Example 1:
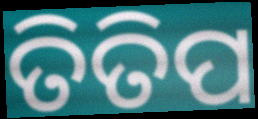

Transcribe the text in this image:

ତିତିପ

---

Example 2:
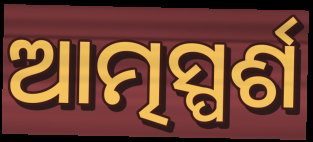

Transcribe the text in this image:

ଆତ୍ମସ୍ପର୍ଶ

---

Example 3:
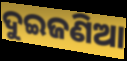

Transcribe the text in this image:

ଦୁଇଜଣିଆ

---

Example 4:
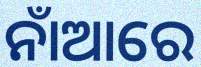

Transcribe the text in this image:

ନାଁଆରେ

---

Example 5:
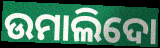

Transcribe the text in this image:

ଉମାଲିଦୋ